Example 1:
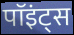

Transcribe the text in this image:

पॉइंट्स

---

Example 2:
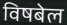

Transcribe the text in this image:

विषबेल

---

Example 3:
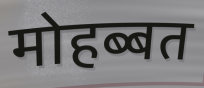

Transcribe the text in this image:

मोहब्बत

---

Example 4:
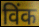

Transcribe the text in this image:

विंक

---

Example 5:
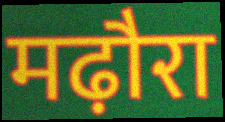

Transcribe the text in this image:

मढ़ौरा